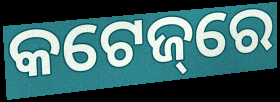
କଟେଜ୍‌ରେ